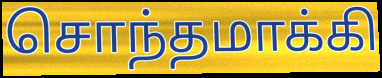
சொந்தமாக்கி